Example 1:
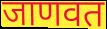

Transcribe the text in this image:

जाणवत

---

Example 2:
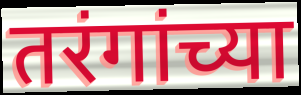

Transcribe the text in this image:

तरंगांच्या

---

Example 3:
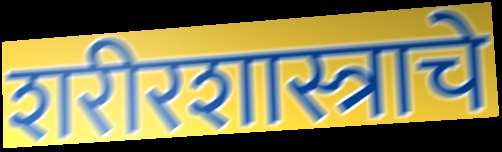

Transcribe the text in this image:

शरीरशास्त्राचे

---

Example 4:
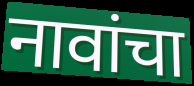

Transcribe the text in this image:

नावांचा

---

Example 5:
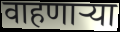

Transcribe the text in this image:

वाहणाऱ्या